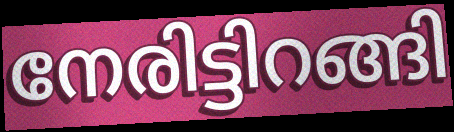
നേരിട്ടിറങ്ങി